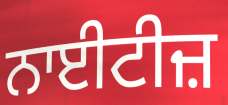
ਨਾਈਟੀਜ਼